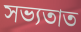
সভ্যতাত